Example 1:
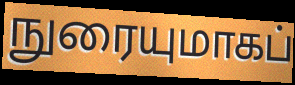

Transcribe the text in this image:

நுரையுமாகப்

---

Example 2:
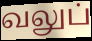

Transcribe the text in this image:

வலுப்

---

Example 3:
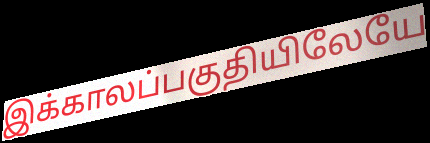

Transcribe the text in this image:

இக்காலப்பகுதியிலேயே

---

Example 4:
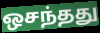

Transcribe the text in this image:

ஒசந்தது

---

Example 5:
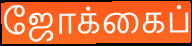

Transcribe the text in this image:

ஜோக்கைப்